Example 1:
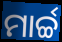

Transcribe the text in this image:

ମାର୍ଚ୍ଚ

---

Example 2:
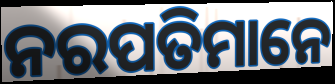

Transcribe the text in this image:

ନରପତିମାନେ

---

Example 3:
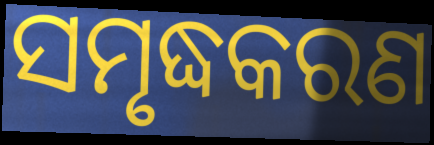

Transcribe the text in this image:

ସମୃଦ୍ଧକରଣ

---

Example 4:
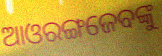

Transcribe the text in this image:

ଆଓରଙ୍ଗଜେବଙ୍କୁ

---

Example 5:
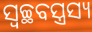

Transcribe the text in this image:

ସ୍ଵଚ୍ଛବସ୍ତ୍ରସ୍ୟ